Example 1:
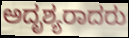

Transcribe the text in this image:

ಅದೃಶ್ಯರಾದರು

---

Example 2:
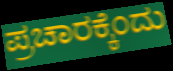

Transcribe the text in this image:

ಪ್ರಚಾರಕ್ಕೆಂದು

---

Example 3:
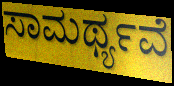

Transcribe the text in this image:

ಸಾಮರ್ಥ್ಯವೆ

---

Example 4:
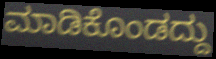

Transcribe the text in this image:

ಮಾಡಿಕೊಂಡದ್ದು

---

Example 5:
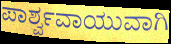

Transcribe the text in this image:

ಪಾರ್ಶ್ವವಾಯುವಾಗಿ